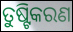
ତୁଷ୍ଟିକରଣ